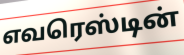
எவரெஸ்டின்